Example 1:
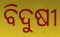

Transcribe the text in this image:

ବିଦୁଷୀ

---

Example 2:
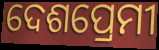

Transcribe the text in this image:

ଦେଶପ୍ରେମୀ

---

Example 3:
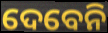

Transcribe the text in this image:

ଦେବେନି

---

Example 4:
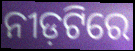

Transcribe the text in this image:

ନୀଡ଼ଟିରେ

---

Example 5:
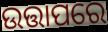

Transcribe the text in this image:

ଉତ୍ତାପରେ